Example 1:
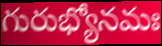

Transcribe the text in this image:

గురుభ్యోనమః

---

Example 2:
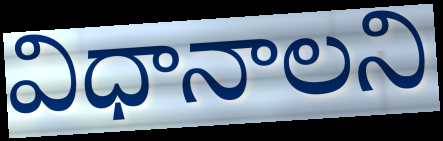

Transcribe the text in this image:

విధానాలని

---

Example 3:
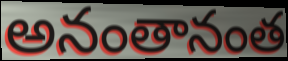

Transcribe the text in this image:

అనంతానంత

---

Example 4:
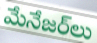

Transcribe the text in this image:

మేనేజర్‌లు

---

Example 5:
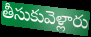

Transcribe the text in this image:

తీసుకువెళ్లారు